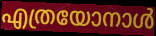
എത്രയോനാൾ